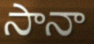
సానా